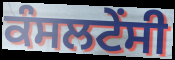
ਕੰਸਲਟੇਂਸੀ